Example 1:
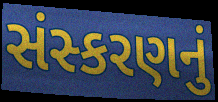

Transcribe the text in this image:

સંસ્કરણનું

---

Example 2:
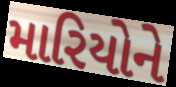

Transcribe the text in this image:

મારિયોને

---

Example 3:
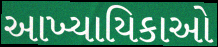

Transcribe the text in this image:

આખ્યાયિકાઓ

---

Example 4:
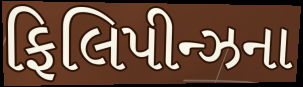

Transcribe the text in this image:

ફિલિપીન્ઝના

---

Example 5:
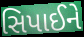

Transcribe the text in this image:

સિપાઈને